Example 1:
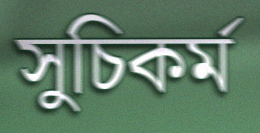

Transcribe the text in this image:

সুচিকর্ম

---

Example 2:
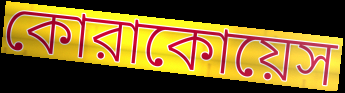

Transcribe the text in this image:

কোরাকোয়েস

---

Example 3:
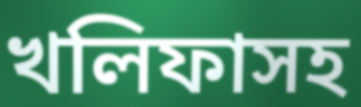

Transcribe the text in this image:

খলিফাসহ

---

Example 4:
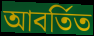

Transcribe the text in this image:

আবর্তিত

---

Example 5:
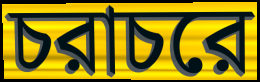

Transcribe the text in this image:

চরাচরে